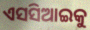
ଏସସିଆଇକୁ